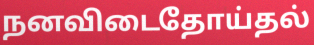
நனவிடைதோய்தல்